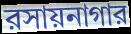
রসায়নাগার